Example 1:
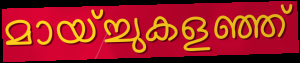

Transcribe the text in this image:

മായ്ച്ചുകളഞ്ഞ്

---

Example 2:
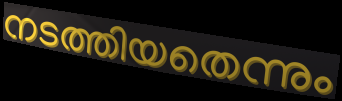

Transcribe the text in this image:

നടത്തിയതെന്നും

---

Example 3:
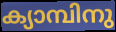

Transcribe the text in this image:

ക്യാമ്പിനു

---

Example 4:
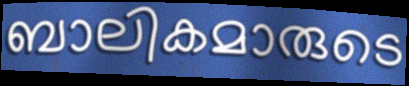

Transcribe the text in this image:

ബാലികമാരുടെ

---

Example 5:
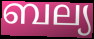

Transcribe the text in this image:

ബല്യ